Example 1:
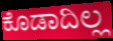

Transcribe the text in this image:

ಕೊಡಾದಿಲ್ಲ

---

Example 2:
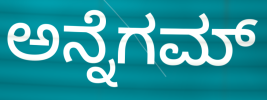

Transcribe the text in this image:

ಅನ್ನೆಗಮ್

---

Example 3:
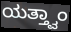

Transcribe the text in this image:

ಯತ್ತ್ವಾಂ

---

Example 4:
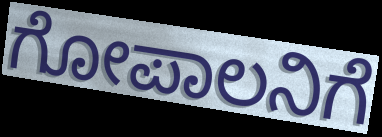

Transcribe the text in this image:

ಗೋಪಾಲನಿಗೆ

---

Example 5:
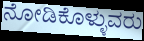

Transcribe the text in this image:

ನೋಡಿಕೊಳ್ಳುವರು